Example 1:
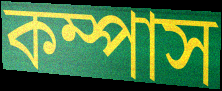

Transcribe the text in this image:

কম্পাস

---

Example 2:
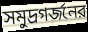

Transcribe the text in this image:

সমুদ্রগর্জনের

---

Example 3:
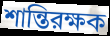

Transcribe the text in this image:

শান্তিরক্ষক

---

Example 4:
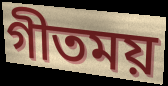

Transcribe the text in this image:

গীতময়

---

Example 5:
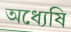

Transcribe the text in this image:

অধ্যেষি